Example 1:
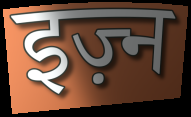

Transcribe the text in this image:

इज़्न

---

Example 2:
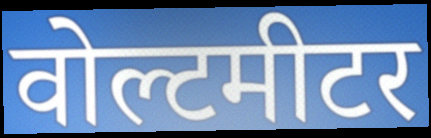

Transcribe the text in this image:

वोल्टमीटर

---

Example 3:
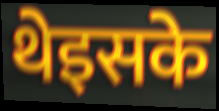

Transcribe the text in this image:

थेइसके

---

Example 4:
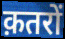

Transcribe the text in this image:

क़तरों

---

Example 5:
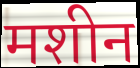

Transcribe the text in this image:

मशीन